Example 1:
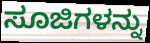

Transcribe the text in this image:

ಸೂಜಿಗಳನ್ನು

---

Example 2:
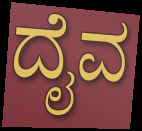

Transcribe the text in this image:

ದೈವ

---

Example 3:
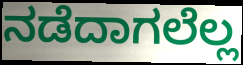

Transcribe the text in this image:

ನಡೆದಾಗಲೆಲ್ಲ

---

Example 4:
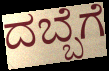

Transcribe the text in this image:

ದಬ್ಬೆಗೆ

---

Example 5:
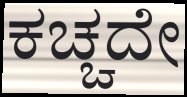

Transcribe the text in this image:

ಕಚ್ಚದೇ